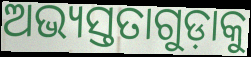
ଅଭ୍ୟସ୍ତତାଗୁଡ଼ାକୁ